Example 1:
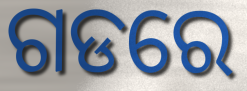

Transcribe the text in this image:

ଗଡରେ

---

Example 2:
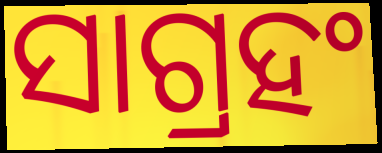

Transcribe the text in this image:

ସାଗ୍ରହଂ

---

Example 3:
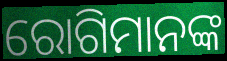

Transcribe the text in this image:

ରୋଗିମାନଙ୍କ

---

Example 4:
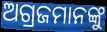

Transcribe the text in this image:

ଅଗ୍ରଜମାନଙ୍କୁ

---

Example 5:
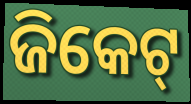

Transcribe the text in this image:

ଜିକେଟ୍